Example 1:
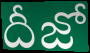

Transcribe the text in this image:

దీజో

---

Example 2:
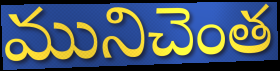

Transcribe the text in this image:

మునిచెంత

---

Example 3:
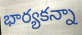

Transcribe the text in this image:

భార్యకన్నా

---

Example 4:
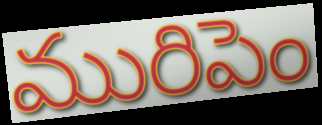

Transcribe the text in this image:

మురిపెం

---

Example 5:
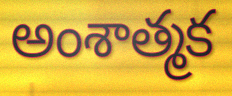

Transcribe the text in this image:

అంశాత్మక